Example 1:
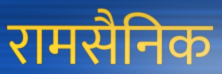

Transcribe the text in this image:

रामसैनिक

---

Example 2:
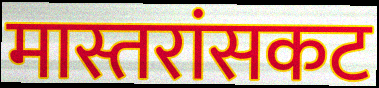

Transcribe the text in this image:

मास्तरांसकट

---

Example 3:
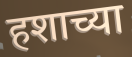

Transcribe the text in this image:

हशाच्या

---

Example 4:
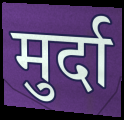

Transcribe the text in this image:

मुर्दा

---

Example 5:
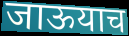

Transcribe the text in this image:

जाऊयाच